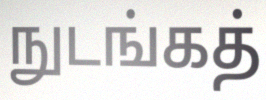
நுடங்கத்